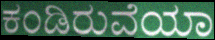
ಕಂಡಿರುವೆಯಾ